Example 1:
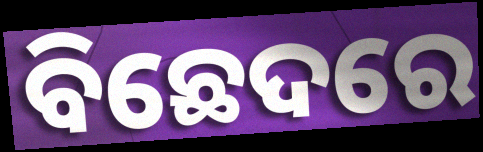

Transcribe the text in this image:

ବିଛେଦରେ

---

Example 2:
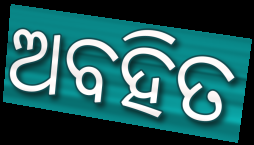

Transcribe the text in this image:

ଅବହିତ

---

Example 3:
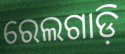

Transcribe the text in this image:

ରେଲଗାଡ଼ି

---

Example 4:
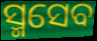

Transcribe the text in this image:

ସ୍ମସେବ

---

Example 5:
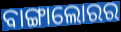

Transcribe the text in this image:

ବାଙ୍ଗାଲୋରର